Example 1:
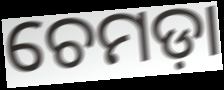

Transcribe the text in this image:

ଚେମଡ଼ା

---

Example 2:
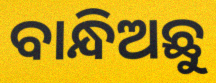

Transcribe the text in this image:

ବାନ୍ଧିଅଛୁ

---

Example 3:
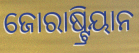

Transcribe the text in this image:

ଜୋରାଷ୍ଟ୍ରିୟାନ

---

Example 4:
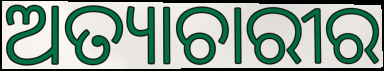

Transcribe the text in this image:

ଅତ୍ୟାଚାରୀର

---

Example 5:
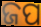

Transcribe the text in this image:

ଜପ